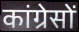
कांग्रेसों